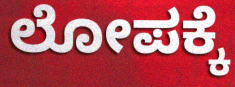
ಲೋಪಕ್ಕೆ